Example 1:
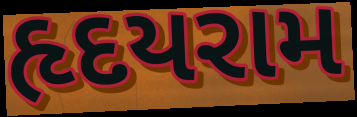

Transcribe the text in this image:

હૃદયરામ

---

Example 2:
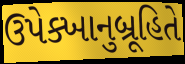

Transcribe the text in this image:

ઉપેક્ખાનુબ્રૂહિતે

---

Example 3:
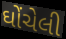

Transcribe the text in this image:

ઘોંચેલી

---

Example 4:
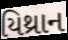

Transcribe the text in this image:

યિથ્રાન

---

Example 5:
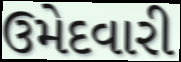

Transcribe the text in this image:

ઉમેદવારી